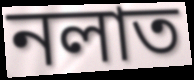
নলাত